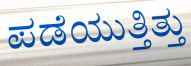
ಪಡೆಯುತ್ತಿತ್ತು